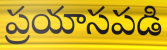
ప్రయాసపడి